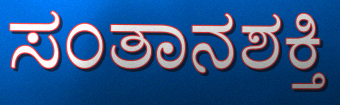
ಸಂತಾನಶಕ್ತಿ